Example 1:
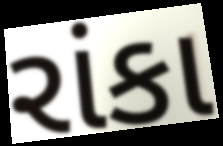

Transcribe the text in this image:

રાંકા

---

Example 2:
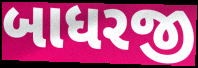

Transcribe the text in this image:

બાધરજી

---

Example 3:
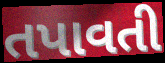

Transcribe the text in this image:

તપાવતી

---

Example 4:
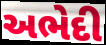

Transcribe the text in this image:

અભેદી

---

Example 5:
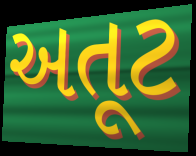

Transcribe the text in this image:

અતૂટ